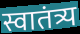
स्वातंत्र्य